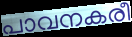
പാവനകരീ